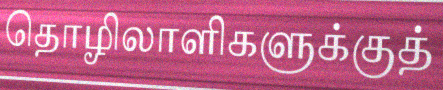
தொழிலாளிகளுக்குத்